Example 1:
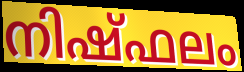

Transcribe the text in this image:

നിഷ്ഫലം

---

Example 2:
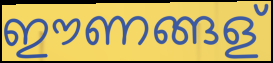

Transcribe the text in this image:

ഈണങ്ങള്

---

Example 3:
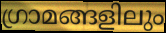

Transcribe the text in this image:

ഗ്രാമങ്ങളിലും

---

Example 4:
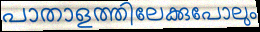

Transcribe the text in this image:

പാതാളത്തിലേക്കുപോലും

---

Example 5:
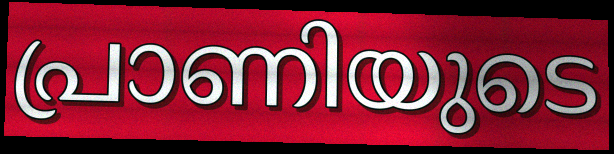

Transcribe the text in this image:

പ്രാണിയുടെ